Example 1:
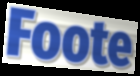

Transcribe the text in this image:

Foote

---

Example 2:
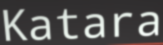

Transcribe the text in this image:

Katara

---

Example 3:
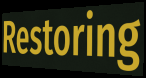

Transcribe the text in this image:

Restoring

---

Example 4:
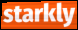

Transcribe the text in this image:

starkly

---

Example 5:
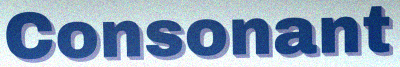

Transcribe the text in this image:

Consonant